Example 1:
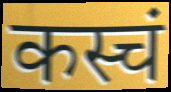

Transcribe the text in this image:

कस्चं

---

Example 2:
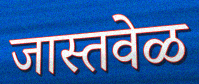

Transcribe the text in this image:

जास्तवेळ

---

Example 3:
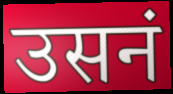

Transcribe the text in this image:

उसनं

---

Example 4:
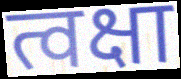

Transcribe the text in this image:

त्वक्षा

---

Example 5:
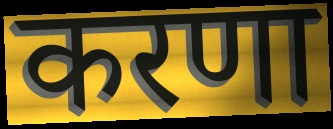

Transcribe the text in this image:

करणा